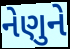
નેણુને